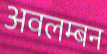
अवलम्बन